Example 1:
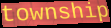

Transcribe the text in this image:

township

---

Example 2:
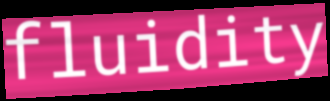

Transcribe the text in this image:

fluidity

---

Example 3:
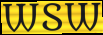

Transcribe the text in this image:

WSW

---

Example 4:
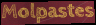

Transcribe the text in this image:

Molpastes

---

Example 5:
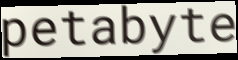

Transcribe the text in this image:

petabyte